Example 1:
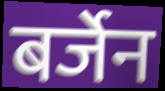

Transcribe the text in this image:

बर्जेन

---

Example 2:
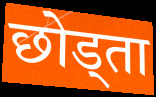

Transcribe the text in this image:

छोड्ता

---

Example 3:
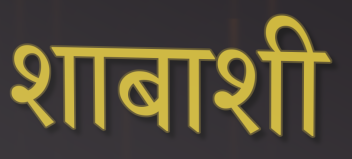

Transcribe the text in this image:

शाबाशी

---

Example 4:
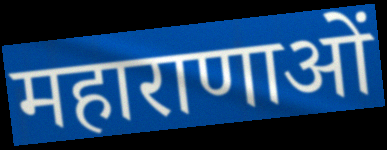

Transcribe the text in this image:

महाराणाओं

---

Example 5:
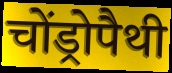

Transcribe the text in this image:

चोंड्रोपैथी